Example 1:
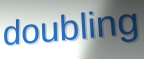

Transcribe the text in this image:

doubling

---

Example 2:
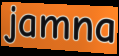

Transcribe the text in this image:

jamna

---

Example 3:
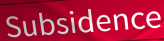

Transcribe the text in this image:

Subsidence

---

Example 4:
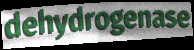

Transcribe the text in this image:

dehydrogenase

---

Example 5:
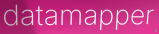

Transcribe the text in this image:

datamapper